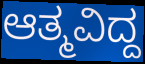
ಆತ್ಮವಿದ್ದ